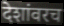
देशांवरच